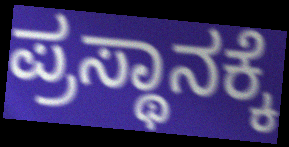
ಪ್ರಸ್ಥಾನಕ್ಕೆ